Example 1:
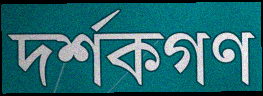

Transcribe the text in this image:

দর্শকগণ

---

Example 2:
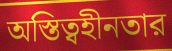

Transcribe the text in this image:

অস্তিত্বহীনতার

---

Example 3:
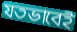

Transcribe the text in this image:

যতভাবেই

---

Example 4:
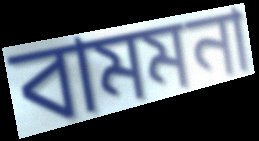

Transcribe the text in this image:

বামমনা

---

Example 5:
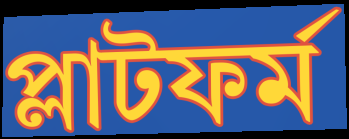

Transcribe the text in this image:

প্লাটফর্ম